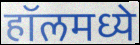
हॉलमध्ये